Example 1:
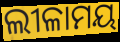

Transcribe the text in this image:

ଲୀଳାମୟ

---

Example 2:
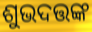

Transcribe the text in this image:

ଶୁଭଦତ୍ତଙ୍କ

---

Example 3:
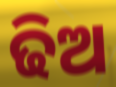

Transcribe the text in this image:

ଢିଅ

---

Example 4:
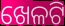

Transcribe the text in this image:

ଖେଳଟି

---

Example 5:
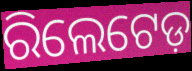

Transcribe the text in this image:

ରିଲେଟେଡ଼